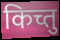
किच्तु